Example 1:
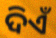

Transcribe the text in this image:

ଦିଏଁ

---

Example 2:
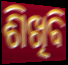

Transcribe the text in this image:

ଶିଖିବି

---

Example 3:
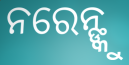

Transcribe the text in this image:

ନରେନ୍ଙ୍କୁ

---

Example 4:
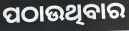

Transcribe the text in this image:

ପଠାଉଥିବାର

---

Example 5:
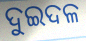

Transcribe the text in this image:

ଦୁଇଦଳ